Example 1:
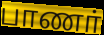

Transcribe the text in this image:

பாணர்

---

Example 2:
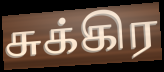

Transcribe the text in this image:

சுக்கிர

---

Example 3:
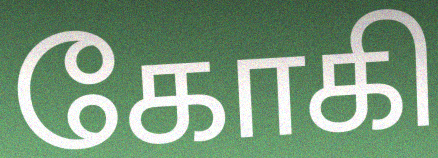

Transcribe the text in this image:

கோகி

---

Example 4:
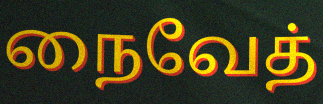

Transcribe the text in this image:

நைவேத்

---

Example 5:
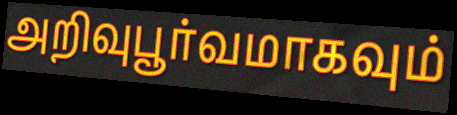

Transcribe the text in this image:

அறிவுபூர்வமாகவும்